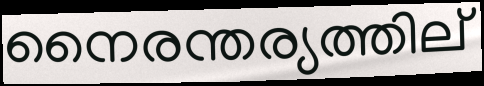
നൈരന്തര്യത്തില്